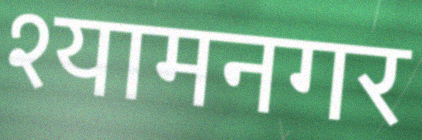
श्यामनगर